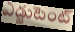
ఎడ్జుటెంట్